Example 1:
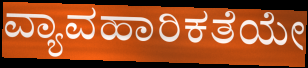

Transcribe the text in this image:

ವ್ಯಾವಹಾರಿಕತೆಯೇ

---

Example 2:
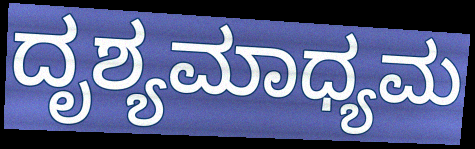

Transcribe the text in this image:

ದೃಶ್ಯಮಾಧ್ಯಮ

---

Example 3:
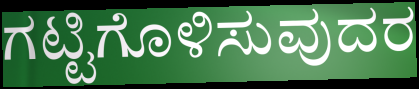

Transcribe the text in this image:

ಗಟ್ಟಿಗೊಳಿಸುವುದರ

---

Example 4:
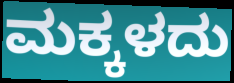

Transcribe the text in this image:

ಮಕ್ಕಳದು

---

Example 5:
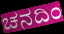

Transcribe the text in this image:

ಚನದಿಂ